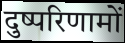
दुष्परिणामों